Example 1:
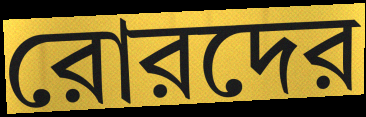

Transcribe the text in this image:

রোরদের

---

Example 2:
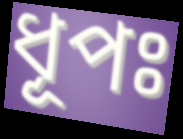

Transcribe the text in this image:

ধূপঃ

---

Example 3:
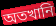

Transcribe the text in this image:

অতখানি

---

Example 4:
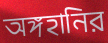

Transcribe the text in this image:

অঙ্গহানির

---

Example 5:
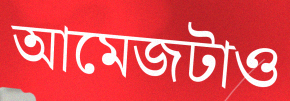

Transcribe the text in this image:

আমেজটাও